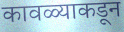
कावळ्याकडून